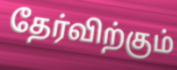
தேர்விற்கும்